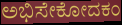
ಅಭಿಸೇಕೋದಕಂ